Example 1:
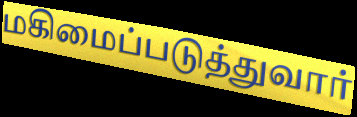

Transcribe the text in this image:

மகிமைப்படுத்துவார்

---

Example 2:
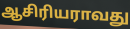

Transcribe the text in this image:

ஆசிரியராவது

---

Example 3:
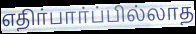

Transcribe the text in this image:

எதிர்பார்ப்பில்லாத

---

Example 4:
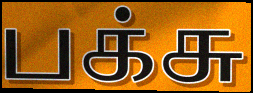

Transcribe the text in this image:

பக்சு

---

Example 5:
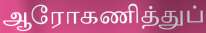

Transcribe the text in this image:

ஆரோகணித்துப்